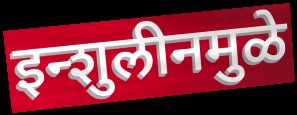
इन्शुलीनमुळे